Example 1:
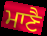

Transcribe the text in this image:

ਮਾਣੈ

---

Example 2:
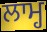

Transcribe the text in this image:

ਲਾਮ੍ਹ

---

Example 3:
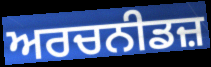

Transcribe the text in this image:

ਅਰਚਨੀਡਜ਼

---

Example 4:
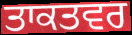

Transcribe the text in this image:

ਤਾਕਤਵਰ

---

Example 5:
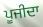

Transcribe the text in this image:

ਪੂਜੀਦਾ